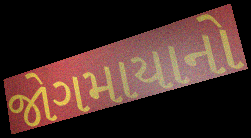
જોગમાયાનો